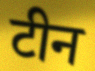
टीन